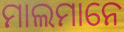
ମାଲମାନେ